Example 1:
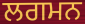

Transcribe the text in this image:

ਲਗਮਨ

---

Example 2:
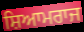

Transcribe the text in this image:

ਸ਼ਿਆਮਰਾਜ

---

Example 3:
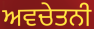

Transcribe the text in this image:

ਅਵਚੇਤਨੀ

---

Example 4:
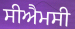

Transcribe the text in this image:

ਸੀਐਮਸੀ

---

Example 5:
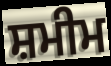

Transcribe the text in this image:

ਸ਼ਮੀਮ